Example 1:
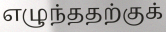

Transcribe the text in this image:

எழுந்ததற்குக்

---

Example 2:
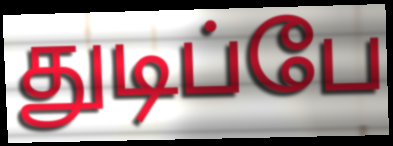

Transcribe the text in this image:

துடிப்பே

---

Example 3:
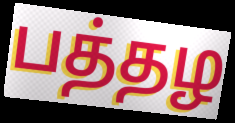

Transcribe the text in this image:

பத்தழ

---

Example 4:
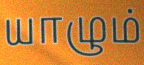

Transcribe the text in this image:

யாழும்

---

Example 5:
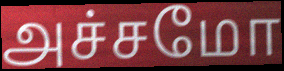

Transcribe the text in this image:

அச்சமோ